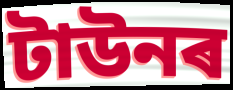
টাউনৰ